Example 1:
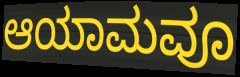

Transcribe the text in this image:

ಆಯಾಮವೂ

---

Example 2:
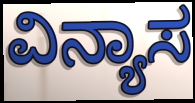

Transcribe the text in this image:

ವಿನ್ಯಾಸ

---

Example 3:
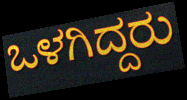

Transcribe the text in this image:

ಒಳಗಿದ್ದರು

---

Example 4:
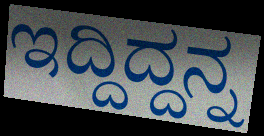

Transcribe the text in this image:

ಇದ್ದಿದ್ದನ್ನ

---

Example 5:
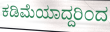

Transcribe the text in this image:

ಕಡಿಮೆಯಾದ್ದರಿಂದ